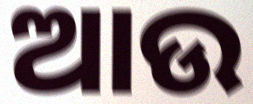
ଆଉ